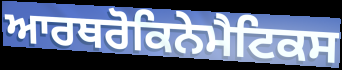
ਆਰਥਰੋਕਿਨੇਮੈਟਿਕਸ